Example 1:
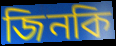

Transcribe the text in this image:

জিনকি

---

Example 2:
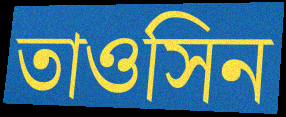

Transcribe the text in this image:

তাওসিন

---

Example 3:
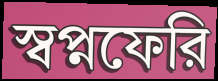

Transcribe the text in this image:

স্বপ্নফেরি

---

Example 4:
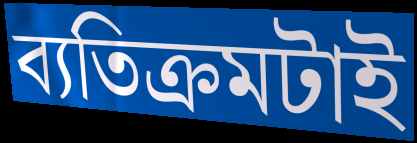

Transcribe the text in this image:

ব্যতিক্রমটাই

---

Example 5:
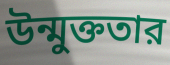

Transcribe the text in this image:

উন্মুক্ততার